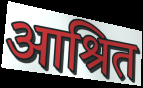
आश्रित